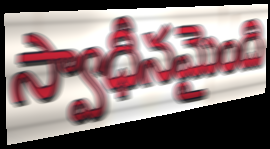
స్వాధీనమైంది